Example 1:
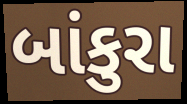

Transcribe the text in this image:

બાંકુરા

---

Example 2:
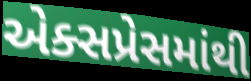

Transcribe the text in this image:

એક્સપ્રેસમાંથી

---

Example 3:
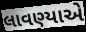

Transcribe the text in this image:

લાવણ્યાએ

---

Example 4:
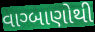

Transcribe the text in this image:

વાગ્બાણોથી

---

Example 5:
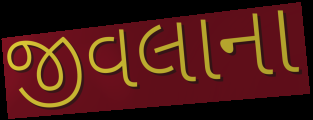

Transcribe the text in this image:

જીવલાના